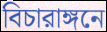
বিচারাঙ্গনে